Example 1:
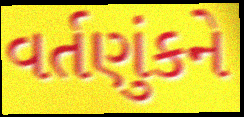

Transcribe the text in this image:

વર્તણુંકને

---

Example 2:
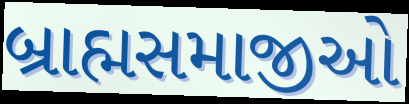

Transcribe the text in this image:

બ્રાહ્મસમાજીઓ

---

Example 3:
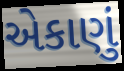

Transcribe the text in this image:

એકાણું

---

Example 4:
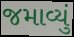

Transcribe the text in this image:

જમાવ્યું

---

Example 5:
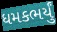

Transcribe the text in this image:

ધમકભર્યું